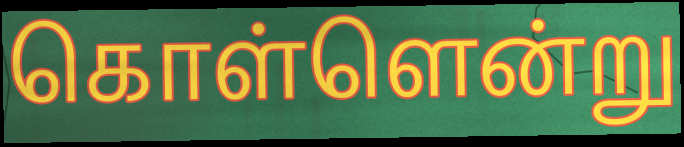
கொள்ளென்று